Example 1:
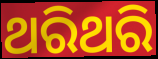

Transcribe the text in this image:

ଥରିଥରି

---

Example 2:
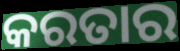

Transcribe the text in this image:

କରତାର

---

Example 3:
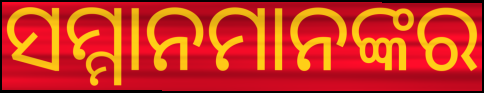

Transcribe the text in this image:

ସମ୍ମାନମାନଙ୍କର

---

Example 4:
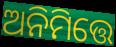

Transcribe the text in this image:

ଅନିମିତ୍ତେ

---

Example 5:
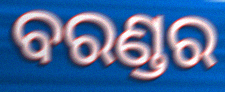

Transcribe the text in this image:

ବରଣ୍ଡର